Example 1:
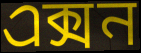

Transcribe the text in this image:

এক্সন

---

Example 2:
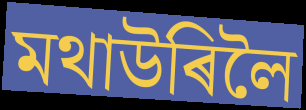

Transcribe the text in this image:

মথাউৰিলৈ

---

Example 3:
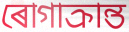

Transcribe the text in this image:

ৰোগাক্ৰান্ত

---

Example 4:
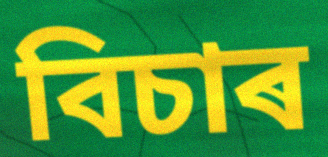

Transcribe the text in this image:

বিচাৰ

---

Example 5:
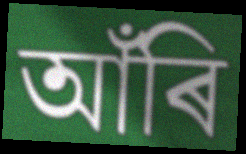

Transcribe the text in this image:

আঁৰি